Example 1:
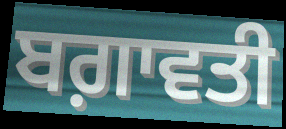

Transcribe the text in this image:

ਬਗ਼ਾਵਤੀ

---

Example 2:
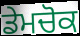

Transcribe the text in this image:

ਡੇਮਚੋਕ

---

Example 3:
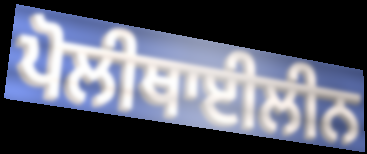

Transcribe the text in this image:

ਪੋਲੀਥਾਈਲੀਨ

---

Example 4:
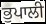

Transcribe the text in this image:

ਭੁਪਾਲੀ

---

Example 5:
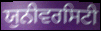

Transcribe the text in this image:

ਯੁਨੀਵਰਸਿਟੀ